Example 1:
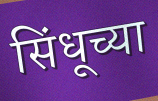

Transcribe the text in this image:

सिंधूच्या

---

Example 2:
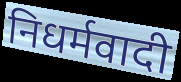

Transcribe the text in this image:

निधर्मवादी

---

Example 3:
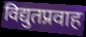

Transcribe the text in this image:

विद्युतप्रवाह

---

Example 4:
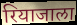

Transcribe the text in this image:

रियाजाला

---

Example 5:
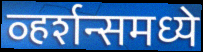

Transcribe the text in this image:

व्हर्शन्समध्ये